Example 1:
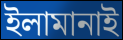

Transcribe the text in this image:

ইলামানাই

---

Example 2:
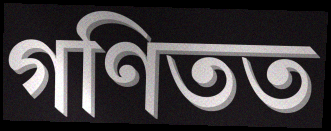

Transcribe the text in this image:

গণিতত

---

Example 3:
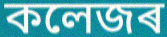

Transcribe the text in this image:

কলেজৰ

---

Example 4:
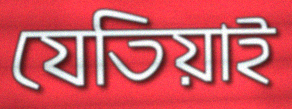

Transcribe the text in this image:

যেতিয়াই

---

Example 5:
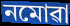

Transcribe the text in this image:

নমোৱা